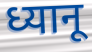
ध्यानू